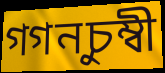
গগনচুম্বী